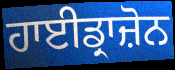
ਹਾਈਡ੍ਰਾਜ਼ੋਨ